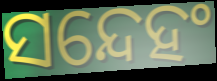
ସନ୍ଦେହଂ